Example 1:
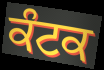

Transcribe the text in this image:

ਕੰਟਕ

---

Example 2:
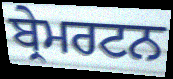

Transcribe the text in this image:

ਬ੍ਰੇਮਰਟਨ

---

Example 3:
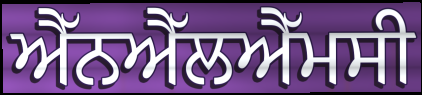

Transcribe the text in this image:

ਐੱਨਐੱਲਐੱਮਸੀ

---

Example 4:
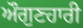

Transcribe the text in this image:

ਔਗੁਣਹਾਰੀ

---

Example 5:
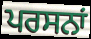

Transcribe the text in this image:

ਪਰਸਨਾਂ